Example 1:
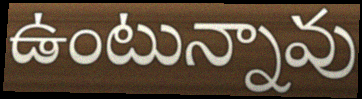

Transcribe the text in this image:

ఉంటున్నావు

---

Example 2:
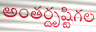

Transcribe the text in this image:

అంతర్దృష్టిగల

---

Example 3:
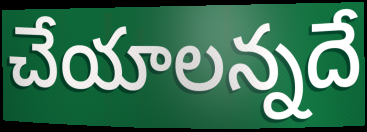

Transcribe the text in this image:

చేయాలన్నదే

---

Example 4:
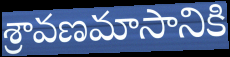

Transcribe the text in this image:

శ్రావణమాసానికి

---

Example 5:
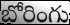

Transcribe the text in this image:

బోరింగు